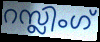
റസ്ലിംഗ്